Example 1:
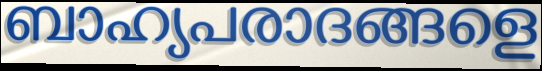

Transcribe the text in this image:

ബാഹ്യപരാദങ്ങളെ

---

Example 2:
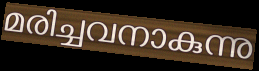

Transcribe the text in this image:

മരിച്ചവനാകുന്നു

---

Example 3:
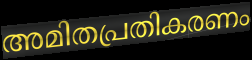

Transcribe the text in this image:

അമിതപ്രതികരണം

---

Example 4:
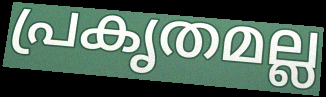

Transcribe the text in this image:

പ്രകൃതമല്ല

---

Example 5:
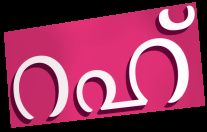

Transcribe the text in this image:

റഹ്